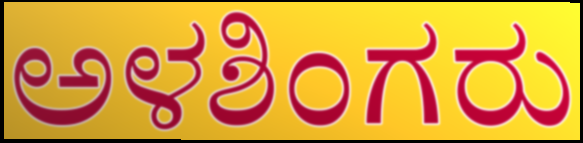
ಅಳಶಿಂಗರು